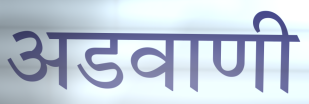
अडवाणी